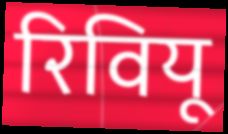
रिवियू